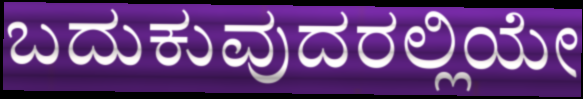
ಬದುಕುವುದರಲ್ಲಿಯೇ